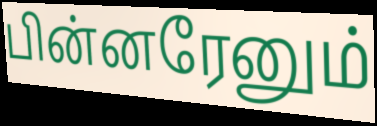
பின்னரேனும்